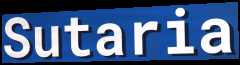
Sutaria